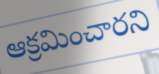
ఆక్రమించారని